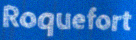
Roquefort